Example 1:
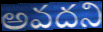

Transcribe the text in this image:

అవదని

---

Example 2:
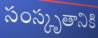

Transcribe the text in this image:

సంస్కృతానికి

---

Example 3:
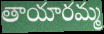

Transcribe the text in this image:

తాయారమ్మ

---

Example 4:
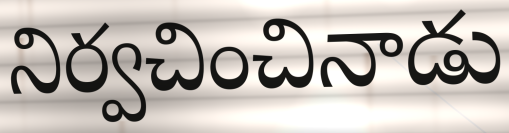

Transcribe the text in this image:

నిర్వచించినాడు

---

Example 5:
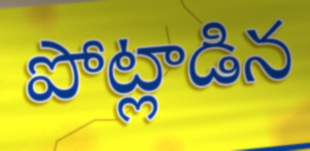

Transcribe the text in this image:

పోట్లాడిన